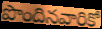
పొందినవారికో